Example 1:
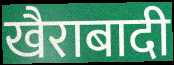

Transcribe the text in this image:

खैराबादी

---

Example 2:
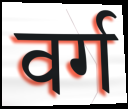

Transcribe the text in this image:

वर्ग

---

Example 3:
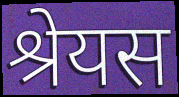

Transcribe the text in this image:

श्रेयस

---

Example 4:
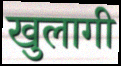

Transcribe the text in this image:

खुलागी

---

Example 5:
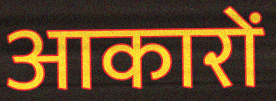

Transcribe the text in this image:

आकारों